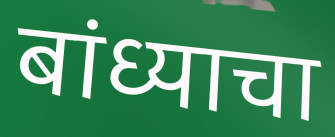
बांध्याचा